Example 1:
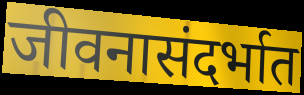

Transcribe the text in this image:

जीवनासंदर्भात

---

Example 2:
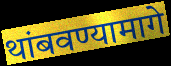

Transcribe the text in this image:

थांबवण्यामागे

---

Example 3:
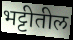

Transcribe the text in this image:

भट्टीतील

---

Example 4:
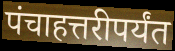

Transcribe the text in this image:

पंचाहत्तरीपर्यंत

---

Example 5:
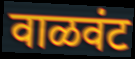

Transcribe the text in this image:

वाळवंट